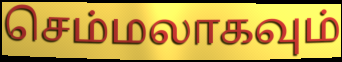
செம்மலாகவும்